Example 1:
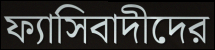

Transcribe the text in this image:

ফ্যাসিবাদীদের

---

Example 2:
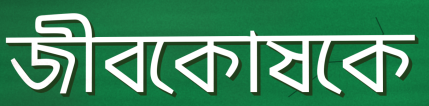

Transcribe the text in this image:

জীবকোষকে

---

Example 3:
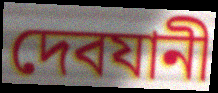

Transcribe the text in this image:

দেবযানী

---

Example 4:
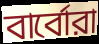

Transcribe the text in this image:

বার্বোরা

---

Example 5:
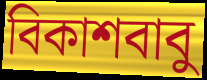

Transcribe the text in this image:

বিকাশবাবু